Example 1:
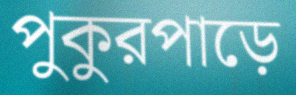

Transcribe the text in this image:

পুকুরপাড়ে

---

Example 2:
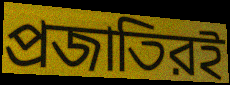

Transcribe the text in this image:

প্রজাতিরই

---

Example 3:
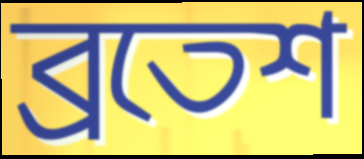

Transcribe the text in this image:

ব্রতেশ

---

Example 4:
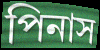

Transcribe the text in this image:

পিনাস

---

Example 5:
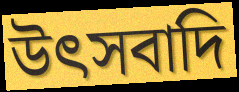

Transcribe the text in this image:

উৎসবাদি